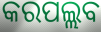
କରପଲ୍ଲବ